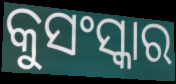
କୁସଂସ୍କାର